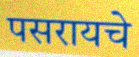
पसरायचे